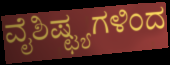
ವೈಶಿಷ್ಟ್ಯಗಳಿಂದ